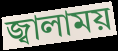
জ্বালাময়